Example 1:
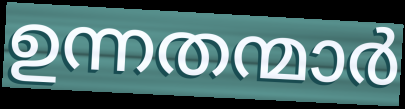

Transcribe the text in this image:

ഉന്നതന്മാർ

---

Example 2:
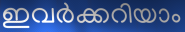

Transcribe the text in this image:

ഇവർക്കറിയാം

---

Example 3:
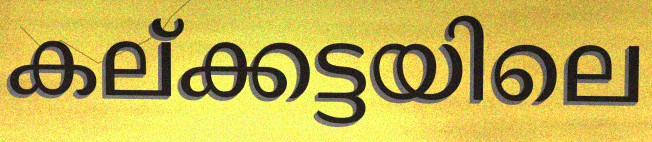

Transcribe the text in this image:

കല്ക്കട്ടയിലെ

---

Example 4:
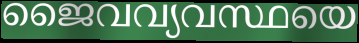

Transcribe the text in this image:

ജൈവവ്യവസ്ഥയെ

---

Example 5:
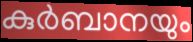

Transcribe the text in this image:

കുർബാനയും